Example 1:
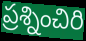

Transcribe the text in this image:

ప్రశ్నించిరి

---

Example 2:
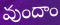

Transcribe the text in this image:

వుందాం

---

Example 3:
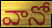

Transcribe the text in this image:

వానో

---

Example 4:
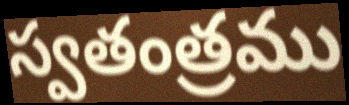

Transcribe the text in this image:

స్వతంత్రము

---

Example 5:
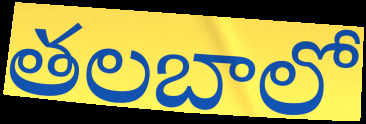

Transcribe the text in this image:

తలబాలో